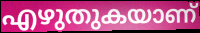
എഴുതുകയാണ്